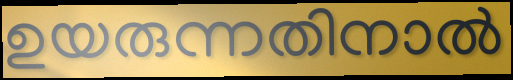
ഉയരുന്നതിനാൽ